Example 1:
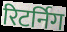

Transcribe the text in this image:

रिटर्निग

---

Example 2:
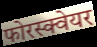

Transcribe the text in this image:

फोरस्क्वेयर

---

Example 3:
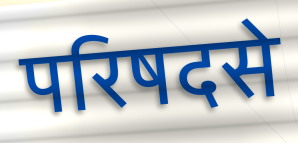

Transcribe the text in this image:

परिषदसे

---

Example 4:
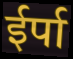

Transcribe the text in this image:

ईर्पा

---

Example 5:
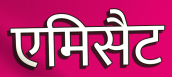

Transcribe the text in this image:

एमिसैट